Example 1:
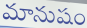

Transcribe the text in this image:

మానుషం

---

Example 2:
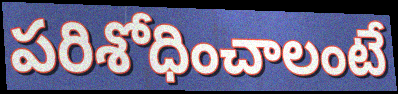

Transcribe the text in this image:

పరిశోధించాలంటే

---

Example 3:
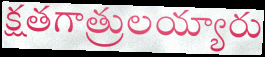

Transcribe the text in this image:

క్షతగాత్రులయ్యారు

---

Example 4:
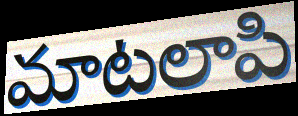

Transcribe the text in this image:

మాటలాపి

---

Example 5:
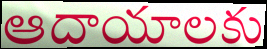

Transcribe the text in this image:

ఆదాయాలకు